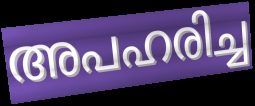
അപഹരിച്ച